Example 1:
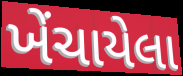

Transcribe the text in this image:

ખેંચાયેલા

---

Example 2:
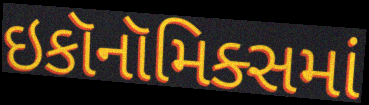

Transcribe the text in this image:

ઇકૉનૉમિક્સમાં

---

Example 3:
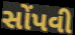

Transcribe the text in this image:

સોંપવી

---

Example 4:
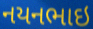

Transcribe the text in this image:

નયનભાઇ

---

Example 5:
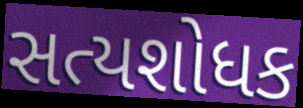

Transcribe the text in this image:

સત્યશોધક